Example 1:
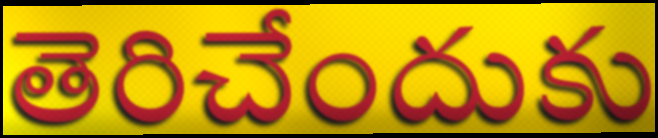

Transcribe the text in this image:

తెరిచేందుకు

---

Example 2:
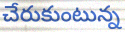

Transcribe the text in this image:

చేరుకుంటున్న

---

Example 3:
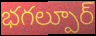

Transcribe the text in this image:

భగల్పూర్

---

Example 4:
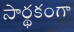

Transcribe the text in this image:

సార్థకంగా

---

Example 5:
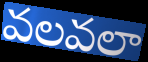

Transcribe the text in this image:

వలవలా